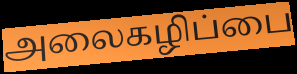
அலைகழிப்பை